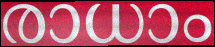
രാധാം